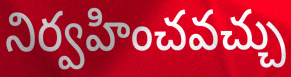
నిర్వహించవచ్చు